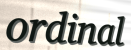
ordinal